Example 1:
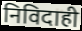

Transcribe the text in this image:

निविदाही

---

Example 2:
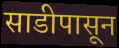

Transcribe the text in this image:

साडीपासून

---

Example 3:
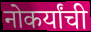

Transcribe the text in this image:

नोकर्यांची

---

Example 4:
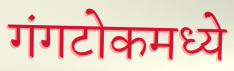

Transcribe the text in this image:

गंगटोकमध्ये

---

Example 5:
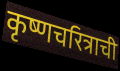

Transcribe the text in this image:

कृष्णचरित्राची